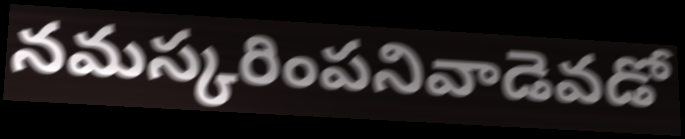
నమస్కరింపనివాడెవడో